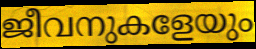
ജീവനുകളേയും